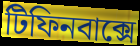
টিফিনবাক্সে